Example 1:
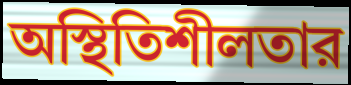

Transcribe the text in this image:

অস্থিতিশীলতার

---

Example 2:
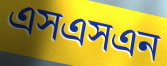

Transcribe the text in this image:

এসএসএন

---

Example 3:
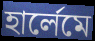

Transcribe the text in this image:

হার্লেমে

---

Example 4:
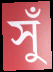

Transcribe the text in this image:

সুঁ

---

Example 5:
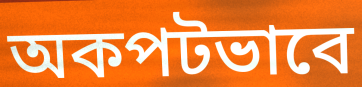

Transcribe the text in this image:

অকপটভাবে